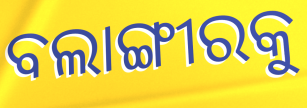
ବଲାଙ୍ଗୀରକୁ